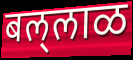
बल्लाळ